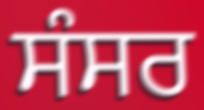
ਸੰਸਰ